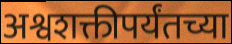
अश्वशक्तीपर्यंतच्या